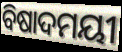
ବିଷାଦମୟୀ